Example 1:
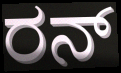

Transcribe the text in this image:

ರನ್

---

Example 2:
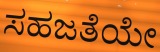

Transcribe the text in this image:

ಸಹಜತೆಯೇ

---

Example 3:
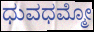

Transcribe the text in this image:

ಧುವಧಮ್ಮೋ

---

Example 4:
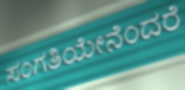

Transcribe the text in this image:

ಸಂಗತಿಯೇನೆಂದರೆ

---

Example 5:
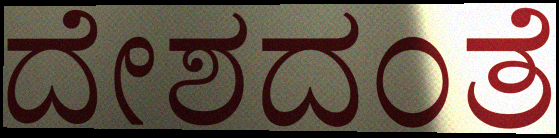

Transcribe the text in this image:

ದೇಶದಂತೆ